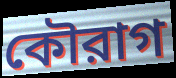
কৌরাগ